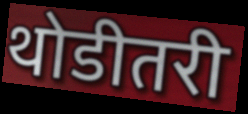
थोडीतरी